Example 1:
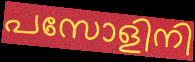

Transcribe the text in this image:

പസോളിനി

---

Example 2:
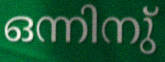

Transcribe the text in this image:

ഒന്നിനു്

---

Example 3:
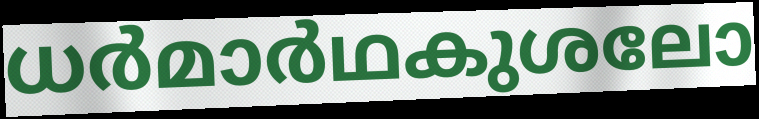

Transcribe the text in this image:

ധർമാർഥകുശലോ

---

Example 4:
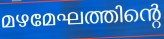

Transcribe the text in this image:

മഴമേഘത്തിന്റെ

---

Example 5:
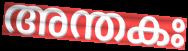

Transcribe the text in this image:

അന്തകഃ